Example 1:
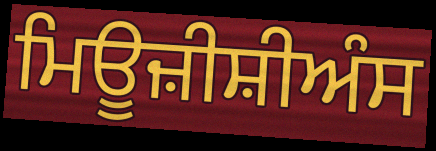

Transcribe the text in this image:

ਮਿਊਜ਼ੀਸ਼ੀਅੰਸ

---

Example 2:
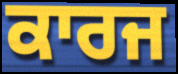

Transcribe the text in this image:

ਕਾਰਜ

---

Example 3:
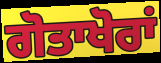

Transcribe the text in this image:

ਗੋਤਾਖੋਰਾਂ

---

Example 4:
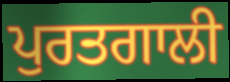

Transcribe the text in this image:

ਪੁਰਤਗਾਲੀ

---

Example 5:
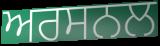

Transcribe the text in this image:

ਅਰਸਨਲ